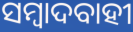
ସମ୍ବାଦବାହୀ